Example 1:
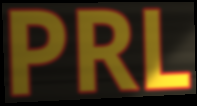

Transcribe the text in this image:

PRL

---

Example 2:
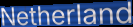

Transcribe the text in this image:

Netherland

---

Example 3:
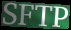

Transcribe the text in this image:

SFTP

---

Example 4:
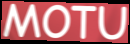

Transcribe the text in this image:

MOTU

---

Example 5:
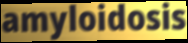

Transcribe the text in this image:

amyloidosis